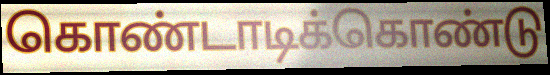
கொண்டாடிக்கொண்டு